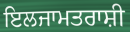
ਇਲਜਾਮਤਰਾਸ਼ੀ